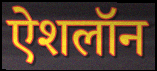
ऐशलॉन